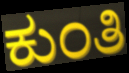
ಕುಂತಿ